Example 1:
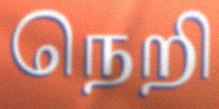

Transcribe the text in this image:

நெறி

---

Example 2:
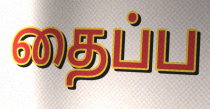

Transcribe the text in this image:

தைப்ப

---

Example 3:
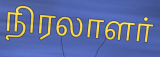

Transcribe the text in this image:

நிரலாளர்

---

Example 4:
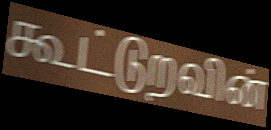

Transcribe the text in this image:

கூட்டுறவின்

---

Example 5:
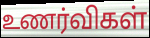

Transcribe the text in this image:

உணர்விகள்